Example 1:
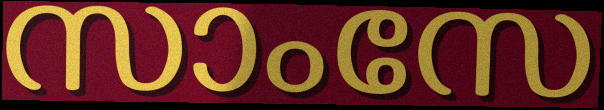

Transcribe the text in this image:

സാംസേ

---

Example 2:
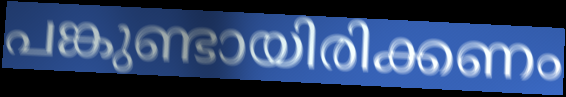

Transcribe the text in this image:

പങ്കുണ്ടായിരിക്കണം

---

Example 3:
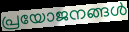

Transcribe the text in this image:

പ്രയോജനങ്ങൾ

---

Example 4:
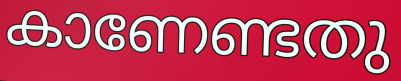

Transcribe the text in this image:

കാണേണ്ടതു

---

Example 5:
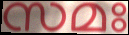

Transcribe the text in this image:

സമഃ